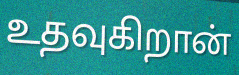
உதவுகிறான்